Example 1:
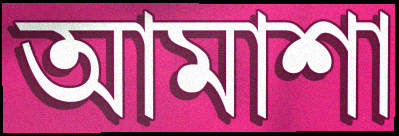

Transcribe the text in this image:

আমাশা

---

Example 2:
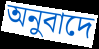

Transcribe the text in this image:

অনুবাদে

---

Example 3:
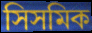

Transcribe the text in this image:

সিসমিক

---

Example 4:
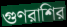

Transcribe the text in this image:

গুণরাশির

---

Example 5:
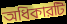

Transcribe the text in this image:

অধিকারটি